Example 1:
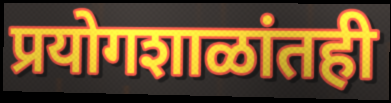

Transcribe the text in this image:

प्रयोगशाळांतही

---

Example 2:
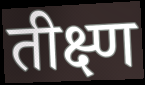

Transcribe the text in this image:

तीक्ष्ण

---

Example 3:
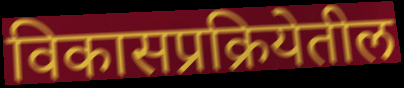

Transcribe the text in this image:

विकासप्रक्रियेतील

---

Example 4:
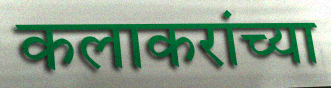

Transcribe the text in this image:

कलाकरांच्या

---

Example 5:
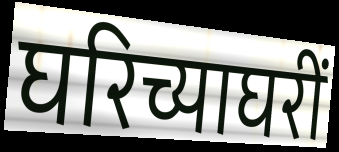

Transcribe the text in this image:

घरिच्याघरीं